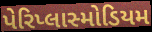
પેરિપ્લાસ્મોડિયમ